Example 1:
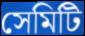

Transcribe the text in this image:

সেমিটি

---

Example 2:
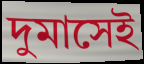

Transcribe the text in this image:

দুমাসেই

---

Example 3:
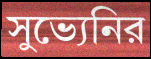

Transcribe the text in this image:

সুভ্যেনির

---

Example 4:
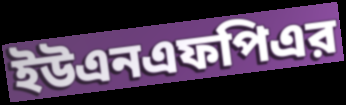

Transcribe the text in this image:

ইউএনএফপিএর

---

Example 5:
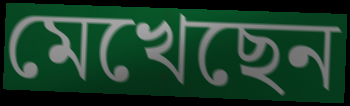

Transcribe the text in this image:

মেখেছেন